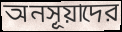
অনসূয়াদের